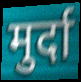
मुर्दा